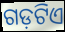
ଗଡ଼ଟିଏ